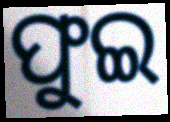
ଫୁଇ